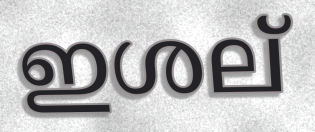
ഇശല്